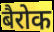
बैरोक